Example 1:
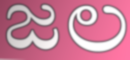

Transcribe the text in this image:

జల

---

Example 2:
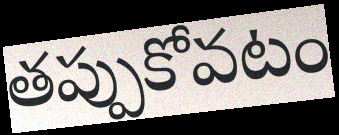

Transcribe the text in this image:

తప్పుకోవటం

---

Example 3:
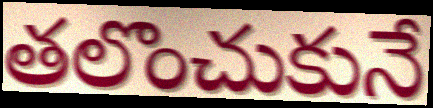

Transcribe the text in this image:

తలొంచుకునే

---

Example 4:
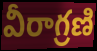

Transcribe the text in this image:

వీరాగ్రణి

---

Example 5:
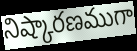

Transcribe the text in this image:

నిష్కారణముగా